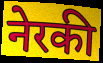
नेरकी